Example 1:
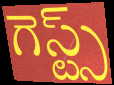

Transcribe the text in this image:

గెస్ట్స్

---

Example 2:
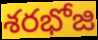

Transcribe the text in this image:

శరభోజి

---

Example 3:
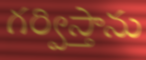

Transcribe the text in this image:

గర్విస్తాను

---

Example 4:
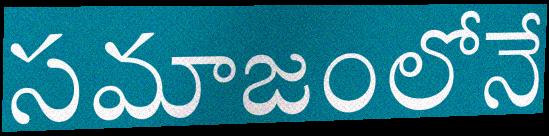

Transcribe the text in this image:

సమాజంలోనే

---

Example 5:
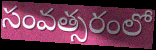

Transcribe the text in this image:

సంవత్సరంలో